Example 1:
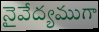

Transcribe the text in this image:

నైవేద్యముగా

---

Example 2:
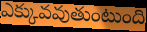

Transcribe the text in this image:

ఎక్కువవుతుంటుంది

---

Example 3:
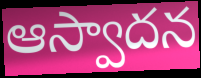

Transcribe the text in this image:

ఆస్వాదన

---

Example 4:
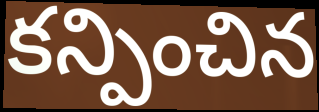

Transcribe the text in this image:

కన్పించిన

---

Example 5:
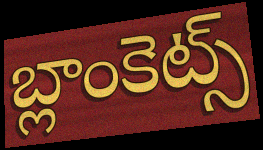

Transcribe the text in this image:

బ్లాంకెట్స్